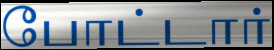
போட்டார்